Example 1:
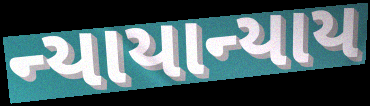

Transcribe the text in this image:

ન્યાયાન્યાય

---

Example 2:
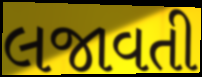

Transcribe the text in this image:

લજાવતી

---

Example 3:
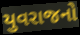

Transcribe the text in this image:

યુવરાજનો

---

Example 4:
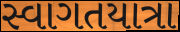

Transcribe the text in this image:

સ્વાગતયાત્રા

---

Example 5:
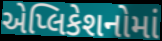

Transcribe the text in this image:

એપ્લિકેશનોમાં